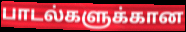
பாடல்களுக்கான